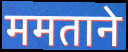
ममताने